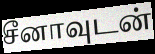
சீனாவுடன்